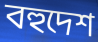
বহুদেশ